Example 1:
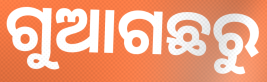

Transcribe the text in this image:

ଗୁଆଗଛରୁ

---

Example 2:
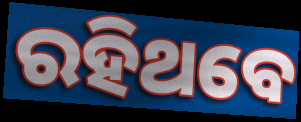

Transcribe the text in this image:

ରହିଥବେ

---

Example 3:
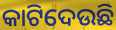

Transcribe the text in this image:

କାଟିଦେଉଛି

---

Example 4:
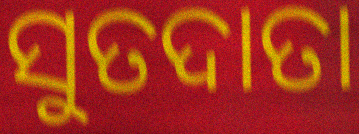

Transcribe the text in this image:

ସୁତଦାତା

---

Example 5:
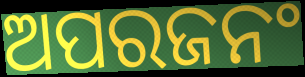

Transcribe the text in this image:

ଅପରଜନଂ